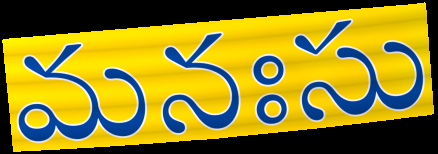
మనఃసు